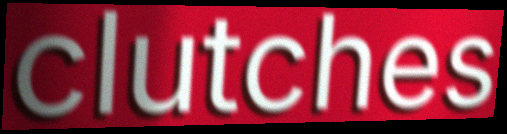
clutches